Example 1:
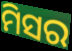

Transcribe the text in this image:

ମିସର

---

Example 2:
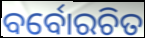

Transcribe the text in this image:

ବର୍ବୋରଚିତ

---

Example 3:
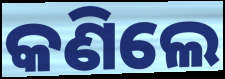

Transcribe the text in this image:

କଣିଲେ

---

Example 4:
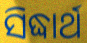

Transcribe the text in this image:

ସିଦ୍ଧାର୍ଥ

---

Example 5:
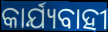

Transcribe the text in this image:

କାର୍ଯ୍ୟବାହୀ